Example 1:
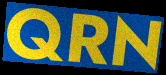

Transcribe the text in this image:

QRN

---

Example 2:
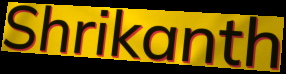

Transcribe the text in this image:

Shrikanth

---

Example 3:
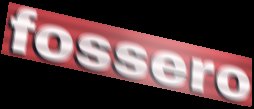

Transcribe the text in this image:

fossero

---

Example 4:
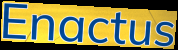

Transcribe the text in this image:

Enactus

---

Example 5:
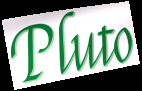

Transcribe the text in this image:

Pluto